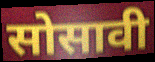
सोसावी